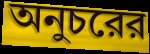
অনুচরের